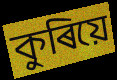
কুৰিয়ে